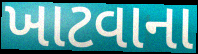
ખાટવાના